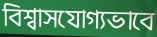
বিশ্বাসযোগ্যভাবে